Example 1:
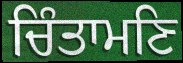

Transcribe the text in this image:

ਚਿੰਤਾਮਣਿ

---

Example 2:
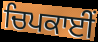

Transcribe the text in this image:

ਚਿਪਕਾਈਂ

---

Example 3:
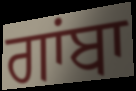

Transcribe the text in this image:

ਗਾਂਬਾ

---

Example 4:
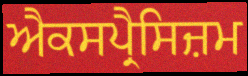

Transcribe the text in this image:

ਐਕਸਪ੍ਰੈਸਿਜ਼ਮ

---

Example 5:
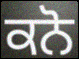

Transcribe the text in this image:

ਕਨੋ